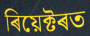
ৰিয়েক্টৰত